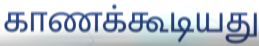
காணக்கூடியது